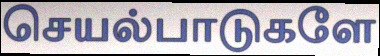
செயல்பாடுகளே